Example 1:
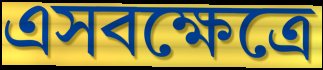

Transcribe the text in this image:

এসবক্ষেত্রে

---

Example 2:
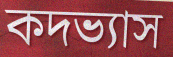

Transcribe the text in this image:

কদভ্যাস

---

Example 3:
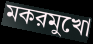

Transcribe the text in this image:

মকরমুখো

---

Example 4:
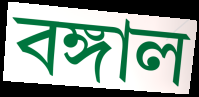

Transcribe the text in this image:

বঙ্গাল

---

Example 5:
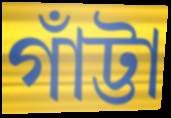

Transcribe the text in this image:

গাঁট্টা